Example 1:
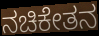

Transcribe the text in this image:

ನಚಿಕೇತನ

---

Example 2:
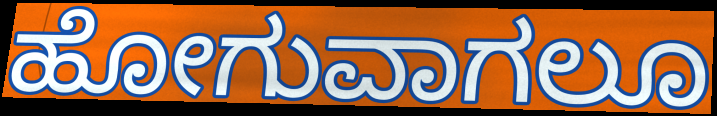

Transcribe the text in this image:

ಹೋಗುವಾಗಲೂ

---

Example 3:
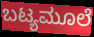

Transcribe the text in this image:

ಬಟ್ಯಮೂಲೆ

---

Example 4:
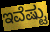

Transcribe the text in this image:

ಇವೆಷ್ಟು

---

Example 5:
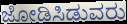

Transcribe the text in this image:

ಜೋಡಿಸಿಡುವರು